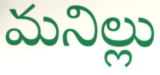
మనిల్లు